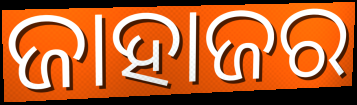
ଜାହାଜର